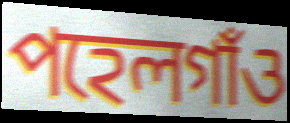
পহেলগাঁও